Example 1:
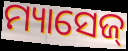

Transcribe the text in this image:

ମ୍ୟାସେଜ୍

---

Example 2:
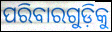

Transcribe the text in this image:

ପରିବାରଗୁଡ଼ିକୁ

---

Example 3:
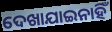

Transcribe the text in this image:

ଦେଖାଯାଇନାହିଁ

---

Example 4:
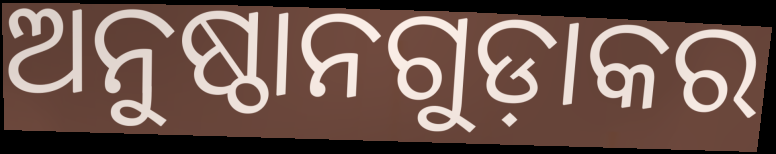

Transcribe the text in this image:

ଅନୁଷ୍ଠାନଗୁଡ଼ାକର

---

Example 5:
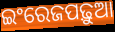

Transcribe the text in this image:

ଇଂରେଜପଢ଼ୁଆ